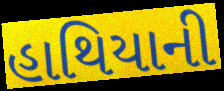
હાથિયાની